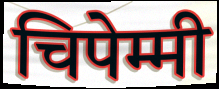
चिपेम्मी